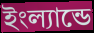
ইংল্যান্ডে